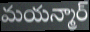
మయన్మార్